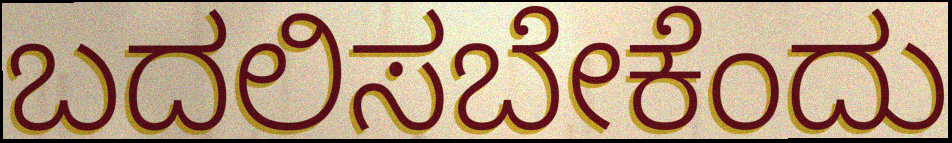
ಬದಲಿಸಬೇಕೆಂದು